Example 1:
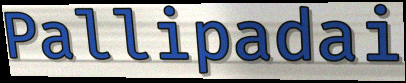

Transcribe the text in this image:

Pallipadai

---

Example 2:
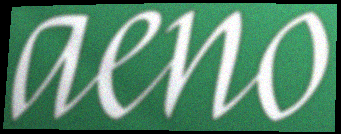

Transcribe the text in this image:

aeno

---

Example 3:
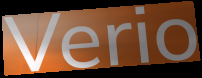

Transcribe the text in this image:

Verio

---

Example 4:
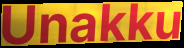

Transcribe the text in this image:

Unakku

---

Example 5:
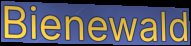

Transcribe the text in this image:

Bienewald